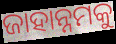
ଜାହାନ୍ନମକୁ